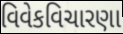
વિવેકવિચારણા